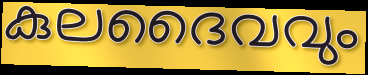
കുലദൈവവും